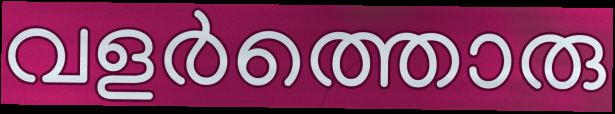
വളർത്തൊരു